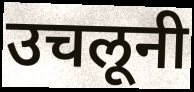
उचलूनी